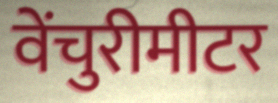
वेंचुरीमीटर